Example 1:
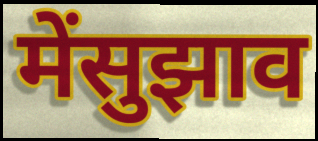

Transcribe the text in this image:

मेंसुझाव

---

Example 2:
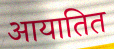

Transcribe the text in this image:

आयातित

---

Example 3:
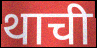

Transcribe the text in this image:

थाची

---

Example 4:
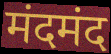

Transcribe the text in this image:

मंदमंद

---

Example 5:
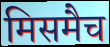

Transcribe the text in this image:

मिसमैच